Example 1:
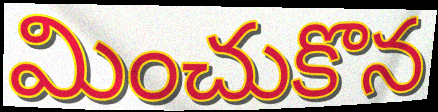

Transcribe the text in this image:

మించుకొన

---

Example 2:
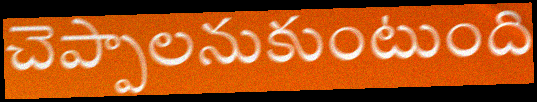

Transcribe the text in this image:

చెప్పాలనుకుంటుంది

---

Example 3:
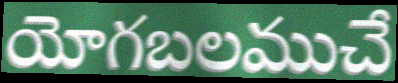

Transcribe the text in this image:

యోగబలముచే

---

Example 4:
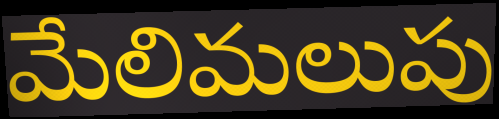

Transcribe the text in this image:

మేలిమలుపు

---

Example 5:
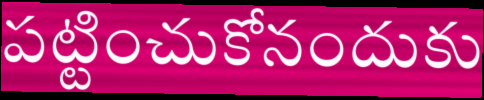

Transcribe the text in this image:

పట్టించుకోనందుకు